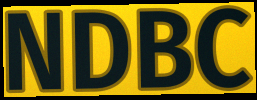
NDBC